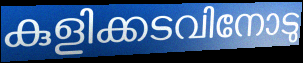
കുളിക്കടവിനോടു